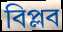
বিপ্লব